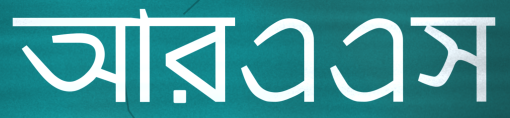
আরএএস